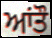
ਆਂਤੌ